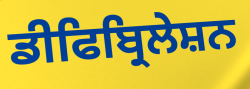
ਡੀਫਿਬ੍ਰਿਲੇਸ਼ਨ